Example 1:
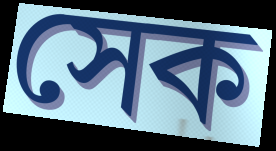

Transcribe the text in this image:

সেক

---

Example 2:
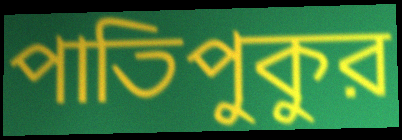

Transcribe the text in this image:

পাতিপুকুর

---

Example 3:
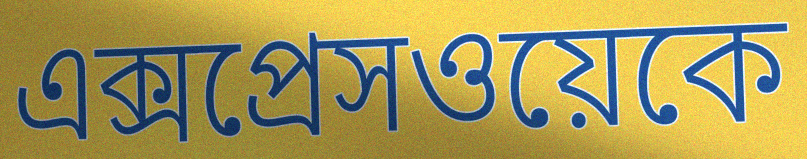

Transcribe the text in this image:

এক্সপ্রেসওয়েকে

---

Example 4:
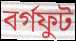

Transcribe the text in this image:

বর্গফুট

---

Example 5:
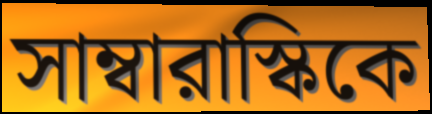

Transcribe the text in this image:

সাম্বারাস্কিকে